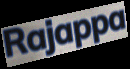
Rajappa